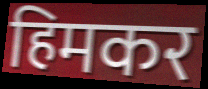
हिमकर